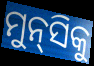
ମୁନ୍‌ସିକୁ